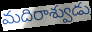
మదిరాశ్వుడు